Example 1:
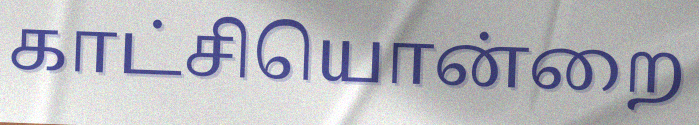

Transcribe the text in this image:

காட்சியொன்றை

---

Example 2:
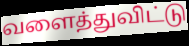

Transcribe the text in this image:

வளைத்துவிட்டு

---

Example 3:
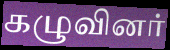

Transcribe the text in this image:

கழுவினர்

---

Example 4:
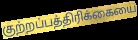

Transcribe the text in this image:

குற்றப்பத்திரிக்கையை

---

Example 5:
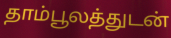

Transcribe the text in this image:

தாம்பூலத்துடன்